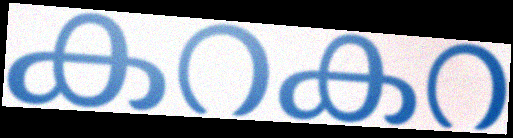
കറകറ